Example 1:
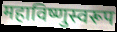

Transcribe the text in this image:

महाविष्णुस्वरूप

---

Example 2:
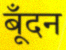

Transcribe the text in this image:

बूँदन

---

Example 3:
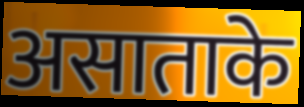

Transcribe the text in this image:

असाताके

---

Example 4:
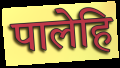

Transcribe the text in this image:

पालेहि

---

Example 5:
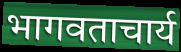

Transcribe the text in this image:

भागवताचार्य